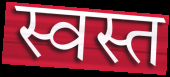
स्वस्त